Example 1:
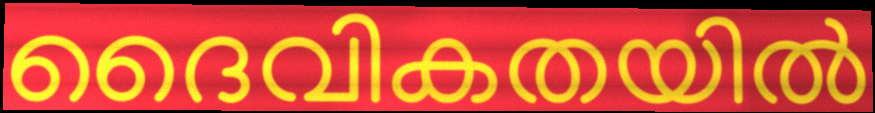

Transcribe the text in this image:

ദൈവികതയിൽ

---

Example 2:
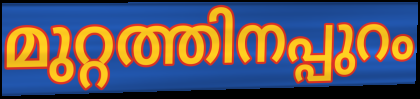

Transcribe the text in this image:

മുറ്റത്തിനപ്പുറം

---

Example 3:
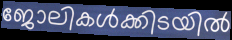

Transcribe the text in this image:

ജോലികൾക്കിടയിൽ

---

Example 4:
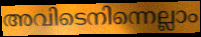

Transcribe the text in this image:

അവിടെനിന്നെല്ലാം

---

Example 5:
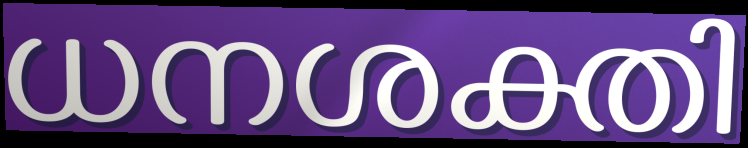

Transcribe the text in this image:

ധനശക്തി